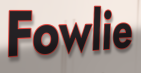
Fowlie